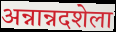
अन्नान्नदशेला